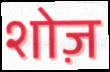
शोज़